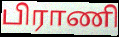
பிராணி